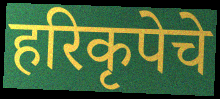
हरिकृपेचे